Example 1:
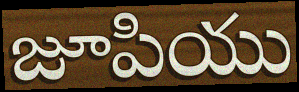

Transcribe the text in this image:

జూపియు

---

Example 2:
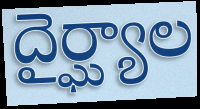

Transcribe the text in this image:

దైర్ఘ్యాల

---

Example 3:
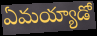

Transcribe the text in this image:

ఏమయ్యాడో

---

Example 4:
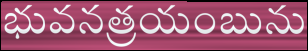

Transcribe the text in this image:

భువనత్రయంబును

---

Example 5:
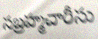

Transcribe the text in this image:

సబ్రహ్మచారీసు